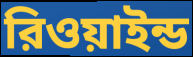
রিওয়াইন্ড